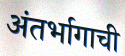
अंतर्भागाची